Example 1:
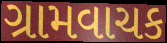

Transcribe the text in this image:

ગ્રામવાચક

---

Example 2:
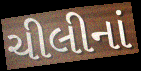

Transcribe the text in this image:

ચીલીનાં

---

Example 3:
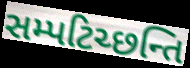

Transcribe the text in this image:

સમ્પટિચ્છન્તિ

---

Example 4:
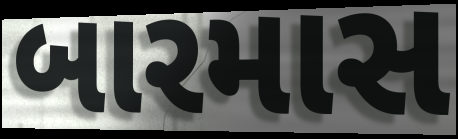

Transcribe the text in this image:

બારમાસ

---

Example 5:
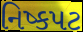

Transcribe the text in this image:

નિષ્કપટ